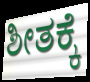
ಶೀತಕ್ಕೆ